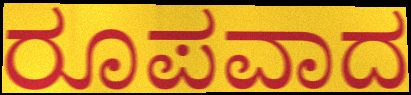
ರೂಪವಾದ